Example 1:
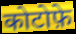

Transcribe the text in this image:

कोटोफ़े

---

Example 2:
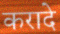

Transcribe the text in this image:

करादे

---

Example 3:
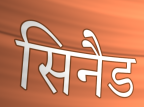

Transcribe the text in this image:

सिनैड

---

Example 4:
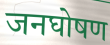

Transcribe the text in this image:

जनघोषण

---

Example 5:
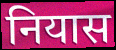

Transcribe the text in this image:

नियास